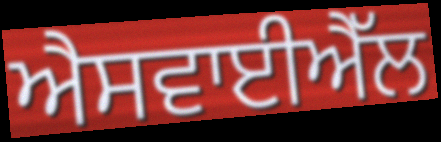
ਐਸਵਾਈਐੱਲ